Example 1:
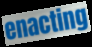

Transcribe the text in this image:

enacting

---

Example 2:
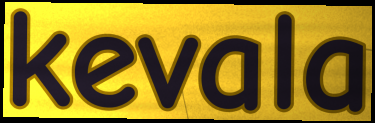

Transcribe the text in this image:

kevala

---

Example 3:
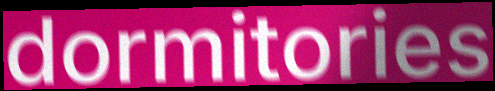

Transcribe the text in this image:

dormitories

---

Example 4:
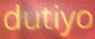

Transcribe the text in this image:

dutiyo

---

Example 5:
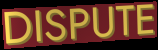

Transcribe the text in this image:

DISPUTE